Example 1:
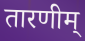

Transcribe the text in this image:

तारणीम्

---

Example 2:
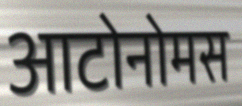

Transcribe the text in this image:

आटोनोमस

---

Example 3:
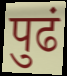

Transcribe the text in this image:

पुढं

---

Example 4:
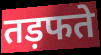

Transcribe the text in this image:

तड़फते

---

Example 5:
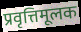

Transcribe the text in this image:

प्रवृत्तिमूलक